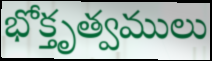
భోక్తృత్వములు